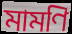
মামণি